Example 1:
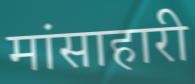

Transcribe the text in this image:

मांसाहारी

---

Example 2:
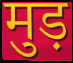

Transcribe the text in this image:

मुड़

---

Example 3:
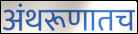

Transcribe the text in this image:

अंथरूणातच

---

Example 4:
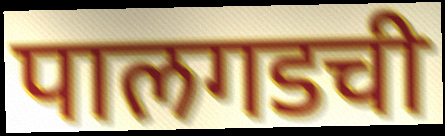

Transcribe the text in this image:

पालगडची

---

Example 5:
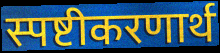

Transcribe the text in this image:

स्पष्टीकरणार्थ